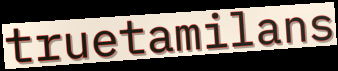
truetamilans